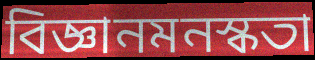
বিজ্ঞানমনস্কতা